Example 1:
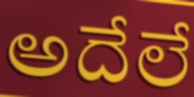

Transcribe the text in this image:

అదేలే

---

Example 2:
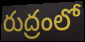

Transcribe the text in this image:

రుద్రంలో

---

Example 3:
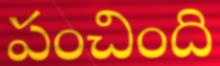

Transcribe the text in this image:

పంచింది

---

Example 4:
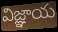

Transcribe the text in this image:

విజ్ఞాయ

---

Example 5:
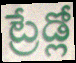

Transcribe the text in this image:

ట్రేడ్లో